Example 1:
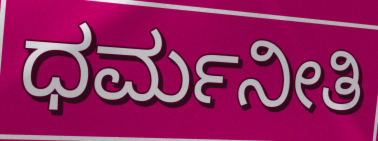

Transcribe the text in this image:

ಧರ್ಮನೀತಿ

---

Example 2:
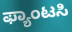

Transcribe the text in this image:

ಫ್ಯಾಂಟಸಿ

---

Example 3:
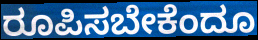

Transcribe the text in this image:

ರೂಪಿಸಬೇಕೆಂದೂ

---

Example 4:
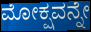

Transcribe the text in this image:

ಮೋಕ್ಷವನ್ನೇ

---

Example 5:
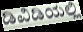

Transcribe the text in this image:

ಡಿವಿಡಿಯಲ್ಲಿ